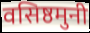
वसिष्ठमुनी